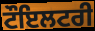
ਟੌਇਲਟਰੀ